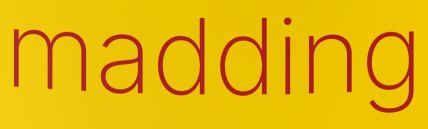
madding